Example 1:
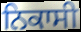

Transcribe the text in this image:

ਨਿਕਾਸੀ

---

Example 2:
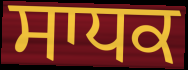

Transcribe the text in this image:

ਸਾਧਕ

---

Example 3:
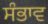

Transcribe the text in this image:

ਸੰਭਾਵ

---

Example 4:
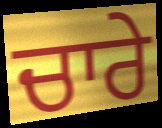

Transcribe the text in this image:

ਚਾਰੇ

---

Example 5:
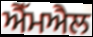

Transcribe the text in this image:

ਐੱਮਐਲ